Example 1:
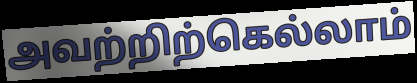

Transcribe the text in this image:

அவற்றிற்கெல்லாம்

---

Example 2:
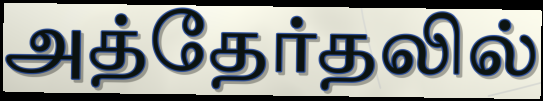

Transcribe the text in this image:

அத்தேர்தலில்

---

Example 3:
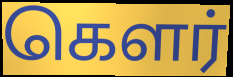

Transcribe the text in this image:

கௌர்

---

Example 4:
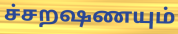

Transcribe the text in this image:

ச்சறஷணயும்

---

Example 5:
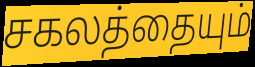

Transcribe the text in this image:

சகலத்தையும்